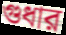
গুধার